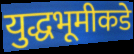
युद्धभूमीकडे